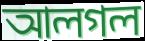
আলগল